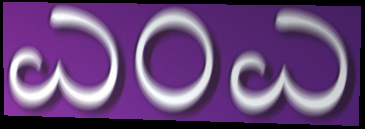
ಎಂಎ